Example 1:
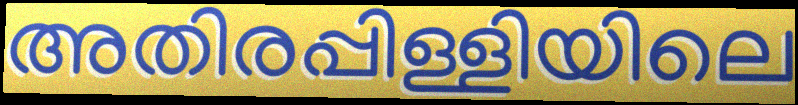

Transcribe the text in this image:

അതിരപ്പിള്ളിയിലെ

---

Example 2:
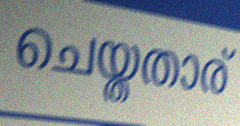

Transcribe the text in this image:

ചെയ്തതാര്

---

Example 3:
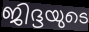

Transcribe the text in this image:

ജിദ്ദയുടെ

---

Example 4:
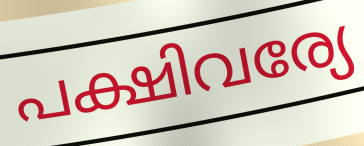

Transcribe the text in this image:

പക്ഷിവര്യേ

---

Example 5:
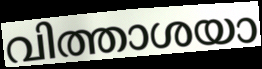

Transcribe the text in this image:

വിത്താശയാ